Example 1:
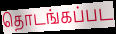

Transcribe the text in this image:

தொடங்கப்பட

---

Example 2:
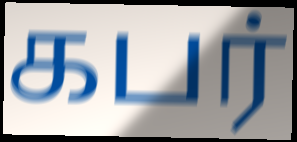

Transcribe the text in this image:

கபர்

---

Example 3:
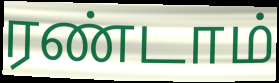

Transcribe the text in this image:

ரண்டாம்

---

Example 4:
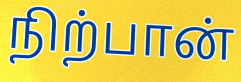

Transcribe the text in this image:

நிற்பான்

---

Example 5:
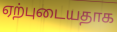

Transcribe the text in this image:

ஏற்புடையதாக